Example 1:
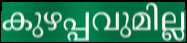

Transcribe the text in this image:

കുഴപ്പവുമില്ല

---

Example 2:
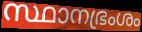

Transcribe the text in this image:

സ്ഥാനഭ്രംശം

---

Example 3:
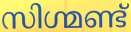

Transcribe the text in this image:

സിഗ്മണ്ട്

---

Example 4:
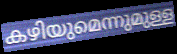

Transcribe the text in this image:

കഴിയുമെന്നുമുള്ള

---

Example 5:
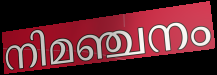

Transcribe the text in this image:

നിമഞ്ചനം